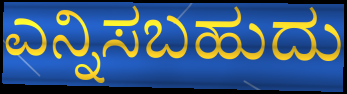
ಎನ್ನಿಸಬಹುದು